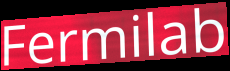
Fermilab